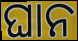
ଘାନ